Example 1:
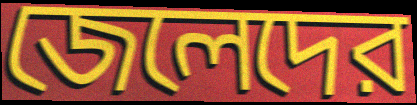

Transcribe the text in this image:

জেলেদের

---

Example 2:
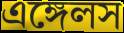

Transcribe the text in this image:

এঙ্গেলস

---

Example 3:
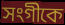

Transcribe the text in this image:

সংগীকে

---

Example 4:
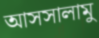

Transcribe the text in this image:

আসসালামু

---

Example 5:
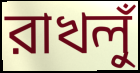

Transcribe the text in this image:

রাখলুঁ